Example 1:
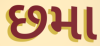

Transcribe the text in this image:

છમા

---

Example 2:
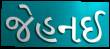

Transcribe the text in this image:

જેહનઈ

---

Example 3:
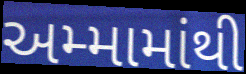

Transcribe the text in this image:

અમ્મામાંથી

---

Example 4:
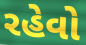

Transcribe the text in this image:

રહેવો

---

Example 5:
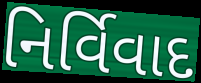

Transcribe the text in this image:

નિર્વિવાદ